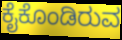
ಕೈಕೊಂಡಿರುವ